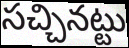
సచ్చినట్టు